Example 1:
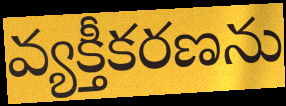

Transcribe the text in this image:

వ్యక్తీకరణను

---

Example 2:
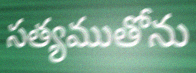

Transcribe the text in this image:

సత్యముతోను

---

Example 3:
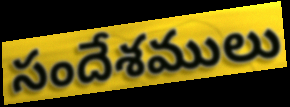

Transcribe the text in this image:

సందేశములు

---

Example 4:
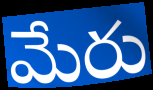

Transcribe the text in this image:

మేరు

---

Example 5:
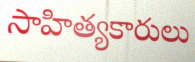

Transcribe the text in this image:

సాహిత్యకారులు